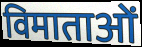
विमाताओं